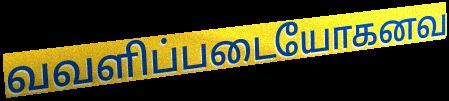
வவளிப்படையோகனவ